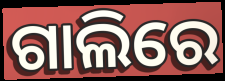
ଗାଲିରେ